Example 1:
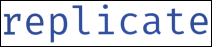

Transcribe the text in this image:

replicate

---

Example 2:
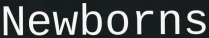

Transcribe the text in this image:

Newborns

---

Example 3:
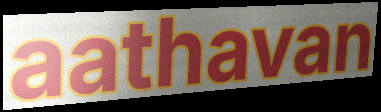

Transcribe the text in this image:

aathavan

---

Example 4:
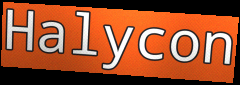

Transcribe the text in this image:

Halycon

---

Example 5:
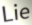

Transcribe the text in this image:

Lie